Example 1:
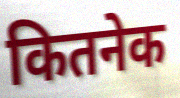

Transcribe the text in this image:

कितनेक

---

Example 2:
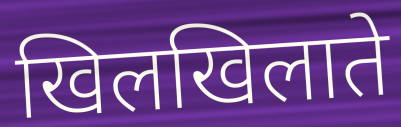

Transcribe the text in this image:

खिलखिलाते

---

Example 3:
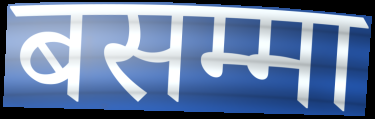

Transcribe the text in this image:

बसम्मा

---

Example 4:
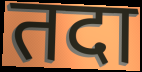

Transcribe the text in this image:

तदा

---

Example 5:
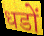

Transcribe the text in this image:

धडों